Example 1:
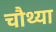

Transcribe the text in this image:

चौथ्या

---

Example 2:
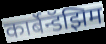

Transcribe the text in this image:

कार्बेन्डॅझिम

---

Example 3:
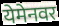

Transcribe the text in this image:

येमेनवर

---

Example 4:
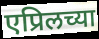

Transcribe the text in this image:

एप्रिलच्या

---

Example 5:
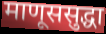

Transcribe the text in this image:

माणूससुद्धा